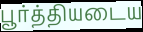
பூர்த்தியடைய